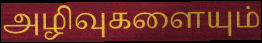
அழிவுகளையும்